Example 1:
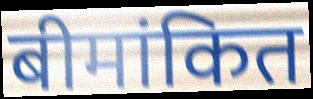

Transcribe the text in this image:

बीमांकित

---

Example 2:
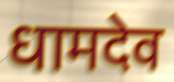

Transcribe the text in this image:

धामदेव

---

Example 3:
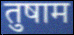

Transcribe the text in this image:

तुषाम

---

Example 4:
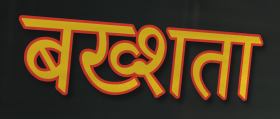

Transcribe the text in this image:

बख्शता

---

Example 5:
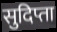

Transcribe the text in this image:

सुदिप्ता